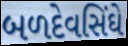
બળદેવસિંઘે